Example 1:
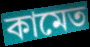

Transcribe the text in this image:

কামেত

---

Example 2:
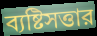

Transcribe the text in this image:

ব্যষ্টিসত্তার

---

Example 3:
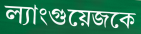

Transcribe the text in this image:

ল্যাংগুয়েজকে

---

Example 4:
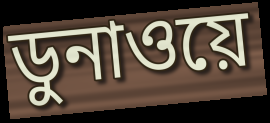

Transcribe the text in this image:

ডুনাওয়ে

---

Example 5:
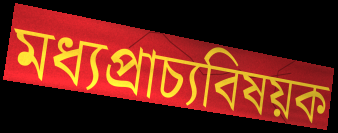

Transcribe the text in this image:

মধ্যপ্রাচ্যবিষয়ক